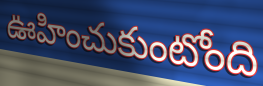
ఊహించుకుంటోంది